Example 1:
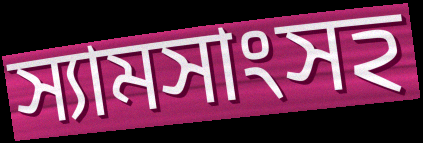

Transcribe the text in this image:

স্যামসাংসহ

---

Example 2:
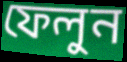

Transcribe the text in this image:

ফেলুন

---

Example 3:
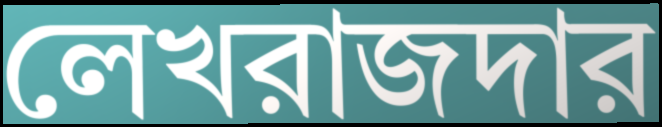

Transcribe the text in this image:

লেখরাজদার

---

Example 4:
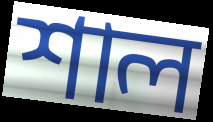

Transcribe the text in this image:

শাল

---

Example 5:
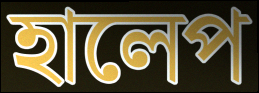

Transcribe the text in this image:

হালেপ